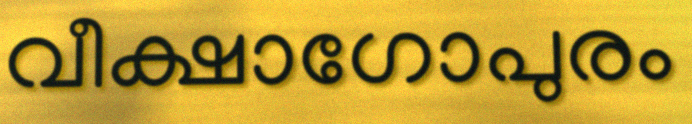
വീക്ഷാഗോപുരം